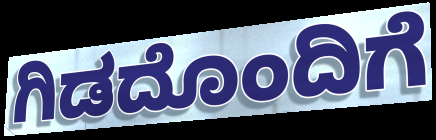
ಗಿಡದೊಂದಿಗೆ